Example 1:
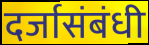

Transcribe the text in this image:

दर्जासंबंधी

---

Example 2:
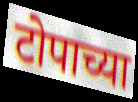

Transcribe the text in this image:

टोपाच्या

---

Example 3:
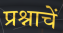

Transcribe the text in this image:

प्रश्नाचें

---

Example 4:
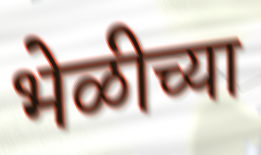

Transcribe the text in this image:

भेळीच्या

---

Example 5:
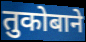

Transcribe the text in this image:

तुकोबाने